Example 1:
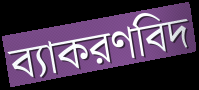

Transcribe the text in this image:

ব্যাকরণবিদ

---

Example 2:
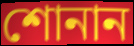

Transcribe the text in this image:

শোনান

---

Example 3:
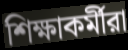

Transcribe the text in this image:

শিক্ষাকর্মীরা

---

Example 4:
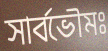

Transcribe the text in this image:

সার্বভৌমঃ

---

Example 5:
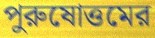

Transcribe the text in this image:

পুরুষোত্তমের